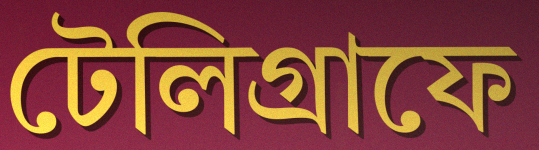
টেলিগ্রাফে